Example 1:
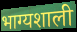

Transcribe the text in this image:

भाग्यशाली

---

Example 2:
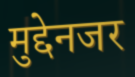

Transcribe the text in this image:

मुद्देनजर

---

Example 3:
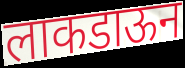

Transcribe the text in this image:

लाकडाऊन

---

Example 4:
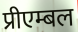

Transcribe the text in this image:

प्रीएम्बल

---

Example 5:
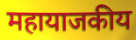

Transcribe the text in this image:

महायाजकीय